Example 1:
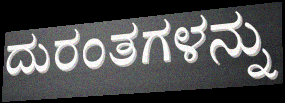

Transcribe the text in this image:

ದುರಂತಗಳನ್ನು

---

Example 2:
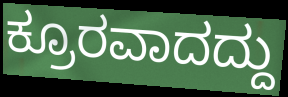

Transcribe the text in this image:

ಕ್ರೂರವಾದದ್ದು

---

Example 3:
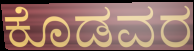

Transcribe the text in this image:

ಕೊಡವರ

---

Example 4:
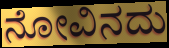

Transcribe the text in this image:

ನೋವಿನದು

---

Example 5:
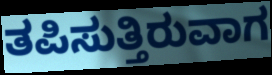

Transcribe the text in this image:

ತಪಿಸುತ್ತಿರುವಾಗ